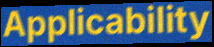
Applicability